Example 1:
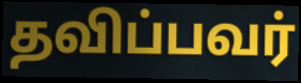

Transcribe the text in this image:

தவிப்பவர்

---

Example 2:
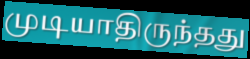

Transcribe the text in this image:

முடியாதிருந்தது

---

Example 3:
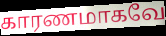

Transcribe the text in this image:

காரணமாகவே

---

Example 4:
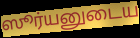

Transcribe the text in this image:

ஸூர்யனுடைய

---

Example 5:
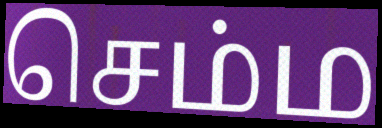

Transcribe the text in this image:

செம்ம